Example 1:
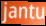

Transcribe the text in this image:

jantu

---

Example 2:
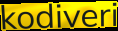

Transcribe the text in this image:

kodiveri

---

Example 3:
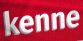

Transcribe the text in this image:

kenne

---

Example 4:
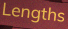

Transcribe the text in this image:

Lengths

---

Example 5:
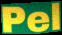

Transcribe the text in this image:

Pel